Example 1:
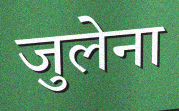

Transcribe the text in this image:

जुलेना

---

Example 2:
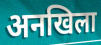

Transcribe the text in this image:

अनखिला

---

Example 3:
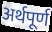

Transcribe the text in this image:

अर्थपूर्ण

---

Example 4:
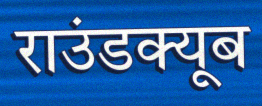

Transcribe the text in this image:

राउंडक्यूब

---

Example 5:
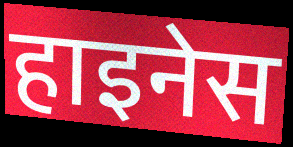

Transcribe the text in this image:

हाइनेस